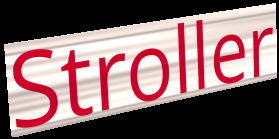
Stroller